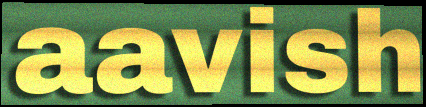
aavish